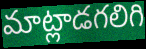
మాట్లాడగలిగి